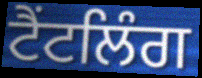
ਟੈਂਟਲਿੰਗ